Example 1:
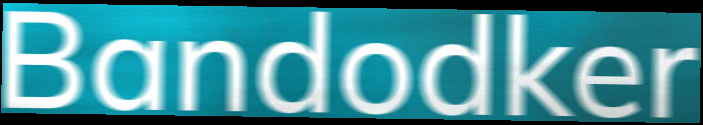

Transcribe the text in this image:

Bandodker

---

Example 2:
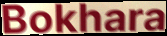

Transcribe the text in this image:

Bokhara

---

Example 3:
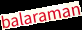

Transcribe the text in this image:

balaraman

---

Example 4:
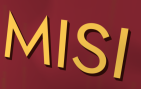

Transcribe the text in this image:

MISI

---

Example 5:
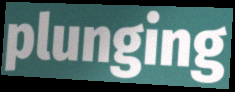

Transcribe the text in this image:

plunging